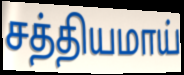
சத்தியமாய்